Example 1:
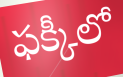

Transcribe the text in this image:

ఫక్కీలో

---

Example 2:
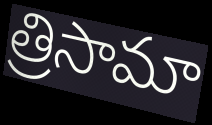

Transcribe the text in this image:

త్రిసామా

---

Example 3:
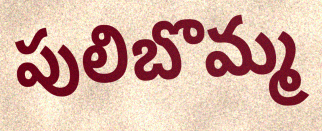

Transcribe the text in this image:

పులిబొమ్మ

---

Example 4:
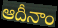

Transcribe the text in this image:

ఆదీనాం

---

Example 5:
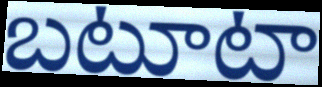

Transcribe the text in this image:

బటూటా